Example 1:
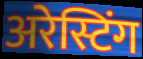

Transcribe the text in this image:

अरेस्टिंग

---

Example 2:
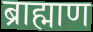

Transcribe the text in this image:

ब्राह्माण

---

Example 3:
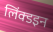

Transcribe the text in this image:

लिंक्‍डइन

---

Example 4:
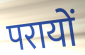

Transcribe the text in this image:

परायों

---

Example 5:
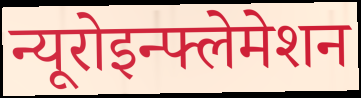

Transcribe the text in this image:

न्यूरोइन्फ्लेमेशन